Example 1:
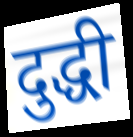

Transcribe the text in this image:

दुद्धी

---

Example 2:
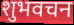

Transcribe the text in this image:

शुभवचन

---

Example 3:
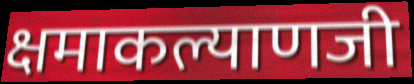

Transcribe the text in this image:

क्षमाकल्याणजी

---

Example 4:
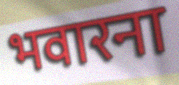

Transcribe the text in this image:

भवारना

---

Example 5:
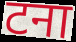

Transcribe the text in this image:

टना